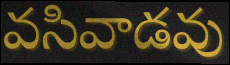
వసివాడవు